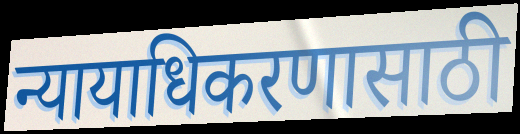
न्यायाधिकरणासाठी